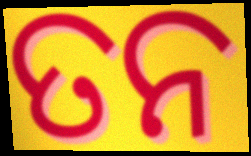
ତନ